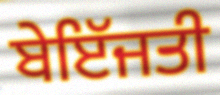
ਬੇਇੱਜਤੀ